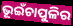
ଭୂଇଁଚାପୁଳିର